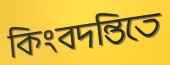
কিংবদন্তিতে